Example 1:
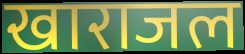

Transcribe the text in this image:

खाराजल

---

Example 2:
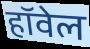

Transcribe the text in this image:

हॉवेल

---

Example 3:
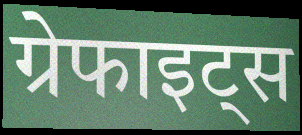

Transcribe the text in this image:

ग्रेफाइट्स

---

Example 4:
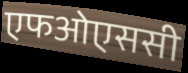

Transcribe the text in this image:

एफओएससी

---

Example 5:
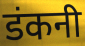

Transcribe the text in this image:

डंकनी